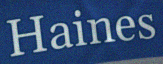
Haines